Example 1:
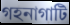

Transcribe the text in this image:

গহনাগাটি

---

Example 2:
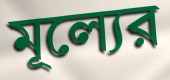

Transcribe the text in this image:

মূল্যের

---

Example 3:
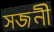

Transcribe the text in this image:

সজনী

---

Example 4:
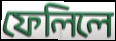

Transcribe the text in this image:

ফেলিলে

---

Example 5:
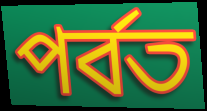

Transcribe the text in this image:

পর্বত